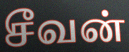
சீவன்